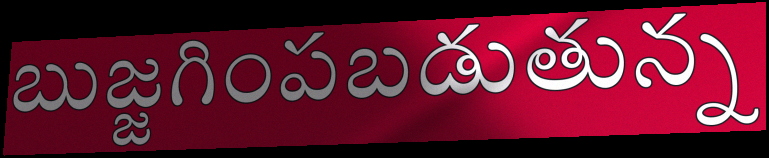
బుజ్జగింపబడుతున్న